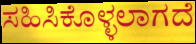
ಸಹಿಸಿಕೊಳ್ಳಲಾಗದೆ